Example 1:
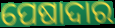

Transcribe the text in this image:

ପେଷାଦାର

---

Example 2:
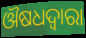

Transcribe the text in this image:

ଔଷଧଦ୍ବାରା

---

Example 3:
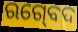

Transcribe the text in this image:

ଋଗ୍‍ବେଦ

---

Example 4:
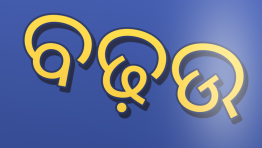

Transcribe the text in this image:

ବଢ଼ଉ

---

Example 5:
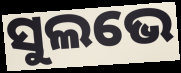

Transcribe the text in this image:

ସୁଲଭେ